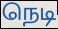
நெடி